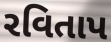
રવિતાપ